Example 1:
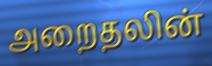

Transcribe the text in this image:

அறைதலின்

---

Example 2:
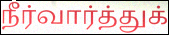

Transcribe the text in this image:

நீர்வார்த்துக்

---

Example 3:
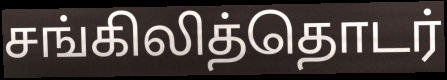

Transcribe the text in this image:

சங்கிலித்தொடர்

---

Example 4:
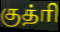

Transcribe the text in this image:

குத்ரி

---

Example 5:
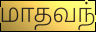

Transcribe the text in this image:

மாதவந்